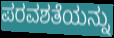
ಪರವಶತೆಯನ್ನು